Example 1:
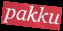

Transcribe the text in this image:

pakku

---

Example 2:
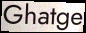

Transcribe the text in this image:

Ghatge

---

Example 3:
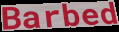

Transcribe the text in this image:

Barbed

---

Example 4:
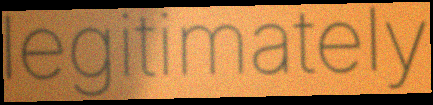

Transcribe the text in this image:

legitimately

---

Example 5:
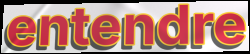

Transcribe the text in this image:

entendre